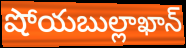
షోయబుల్లాఖాన్